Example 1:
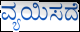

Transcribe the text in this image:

ವ್ಯಯಿಸದೆ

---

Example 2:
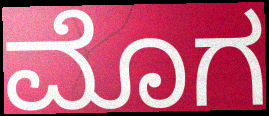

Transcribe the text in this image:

ಮೊಗ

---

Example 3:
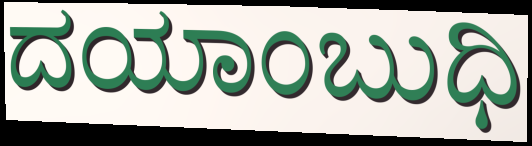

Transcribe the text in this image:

ದಯಾಂಬುಧಿ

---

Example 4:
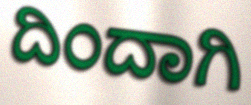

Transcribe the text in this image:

ದಿಂದಾಗಿ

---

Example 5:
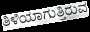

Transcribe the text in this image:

ತಿಳಿಯಾಗುತ್ತಿರುವ